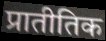
प्रातीतिक